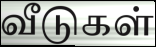
வீடுகள்